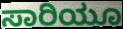
ಸಾರಿಯೂ